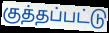
குத்தப்பட்டு